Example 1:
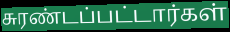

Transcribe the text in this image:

சுரண்டப்பட்டார்கள்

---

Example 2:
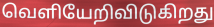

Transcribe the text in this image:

வெளியேறிவிடுகிறது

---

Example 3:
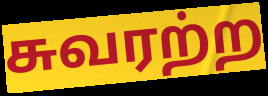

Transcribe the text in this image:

சுவரற்ற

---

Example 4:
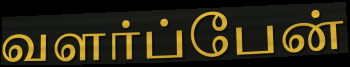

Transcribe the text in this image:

வளர்ப்பேன்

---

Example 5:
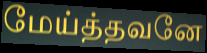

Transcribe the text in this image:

மேய்த்தவனே